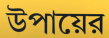
উপায়ের